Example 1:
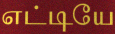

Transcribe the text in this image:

எட்டியே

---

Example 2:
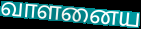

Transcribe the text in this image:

வாளனைய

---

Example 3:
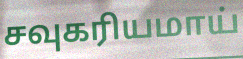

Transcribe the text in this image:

சவுகரியமாய்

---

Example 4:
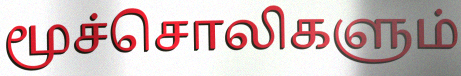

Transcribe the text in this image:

மூச்சொலிகளும்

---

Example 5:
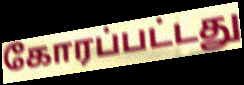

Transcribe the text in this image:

கோரப்பட்டது